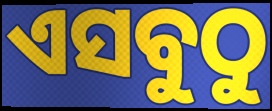
ଏସବୁଠୁ